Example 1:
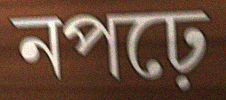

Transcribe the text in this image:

নপঢ়ে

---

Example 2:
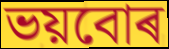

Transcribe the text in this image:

ভয়বোৰ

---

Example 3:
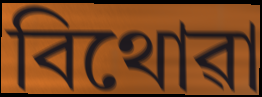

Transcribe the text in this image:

বিথোৱা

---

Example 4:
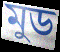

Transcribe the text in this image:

মুড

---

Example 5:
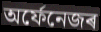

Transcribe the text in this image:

অৰ্ফেনেজৰ